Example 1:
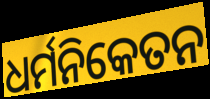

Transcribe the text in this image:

ଧର୍ମନିକେତନ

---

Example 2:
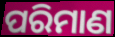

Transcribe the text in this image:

ପରିମାଣ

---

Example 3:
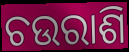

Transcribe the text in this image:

ଚଉରାଶି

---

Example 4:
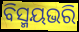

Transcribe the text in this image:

ବିସ୍ମୟଭରି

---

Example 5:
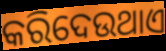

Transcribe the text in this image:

କରିଦେଉଥାଏ